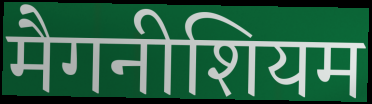
मैगनीशियम